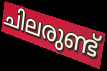
ചിലരുണ്ട്